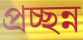
প্রচ্ছন্ন